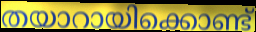
തയാറായിക്കൊണ്ട്